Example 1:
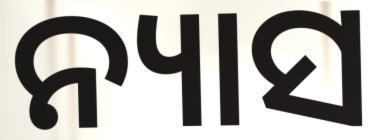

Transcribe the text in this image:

ନ୍ୟାସ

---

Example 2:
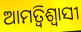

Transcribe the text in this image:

ଆମତ୍ବିଶ୍ୱାସୀ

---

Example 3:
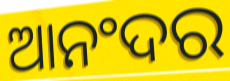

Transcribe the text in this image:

ଆନଂଦର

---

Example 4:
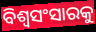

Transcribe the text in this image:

ବିଶ୍ୱସଂସାରକୁ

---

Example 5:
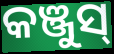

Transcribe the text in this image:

କଞ୍ଜୁସ୍